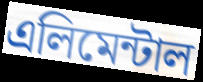
এলিমেন্টাল